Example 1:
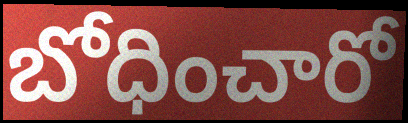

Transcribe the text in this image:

బోధించారో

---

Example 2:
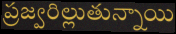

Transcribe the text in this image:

ప్రజ్వరిల్లుతున్నాయి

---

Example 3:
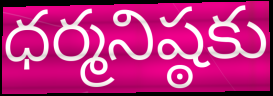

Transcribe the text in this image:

ధర్మనిష్ఠకు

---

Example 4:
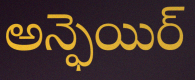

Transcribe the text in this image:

అన్ఫెయిర్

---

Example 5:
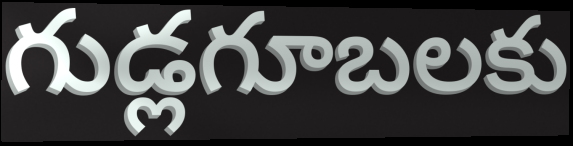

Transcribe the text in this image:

గుడ్లగూబలకు